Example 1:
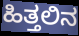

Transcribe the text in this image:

ಹಿತ್ತಲಿನ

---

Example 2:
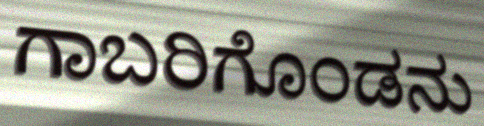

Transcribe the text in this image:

ಗಾಬರಿಗೊಂಡನು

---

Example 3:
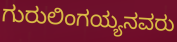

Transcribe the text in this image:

ಗುರುಲಿಂಗಯ್ಯನವರು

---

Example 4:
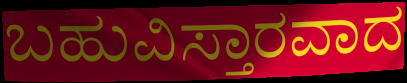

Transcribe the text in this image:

ಬಹುವಿಸ್ತಾರವಾದ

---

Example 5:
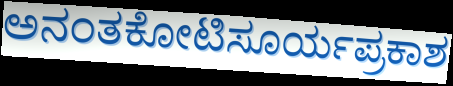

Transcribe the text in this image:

ಅನಂತಕೋಟಿಸೂರ್ಯಪ್ರಕಾಶ